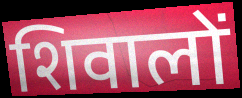
शिवालों